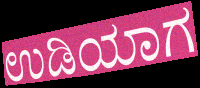
ಉಡಿಯಾಗ